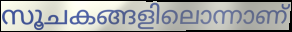
സൂചകങ്ങളിലൊന്നാണ്